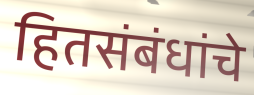
हितसंबंधांचे